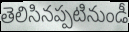
తెలిసినప్పటినుండీ